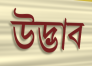
উদ্ভাব